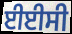
ਈਈਸੀ